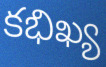
కభిఖ్య